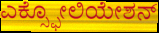
ಎಕ್ಸ್ಫೋಲಿಯೇಶನ್